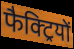
फैक्ट्रियों